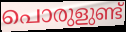
പൊരുളുണ്ട്